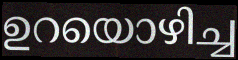
ഉറയൊഴിച്ച